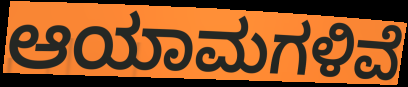
ಆಯಾಮಗಳಿವೆ